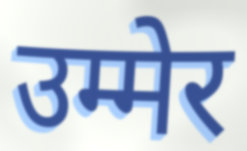
उम्मेर